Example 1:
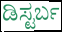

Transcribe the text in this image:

ಡಿಸ್ಟರ್ಬ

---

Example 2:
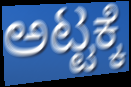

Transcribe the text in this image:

ಅಟ್ಟಕ್ಕೆ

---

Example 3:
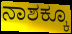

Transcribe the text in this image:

ನಾಶಕ್ಕೂ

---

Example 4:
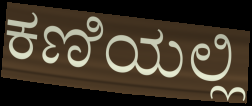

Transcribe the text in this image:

ಕಣಿಯಲ್ಲಿ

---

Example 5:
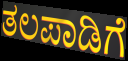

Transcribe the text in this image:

ತಲಪಾಡಿಗೆ